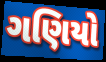
ગણિયો